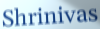
Shrinivas